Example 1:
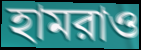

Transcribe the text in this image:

হামরাও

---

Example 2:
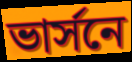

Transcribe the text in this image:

ভার্সনে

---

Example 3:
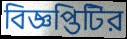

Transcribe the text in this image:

বিজ্ঞপ্তিটির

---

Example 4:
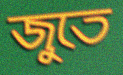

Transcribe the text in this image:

জুতে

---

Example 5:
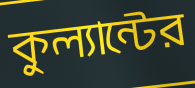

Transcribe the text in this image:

কুল্যান্টের